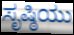
ಸೃಷ್ಠಿಯು